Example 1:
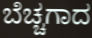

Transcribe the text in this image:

ಬೆಚ್ಚಗಾದ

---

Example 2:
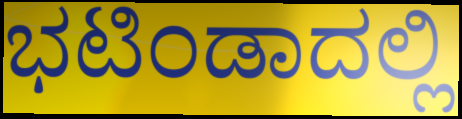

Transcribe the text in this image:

ಭಟಿಂಡಾದಲ್ಲಿ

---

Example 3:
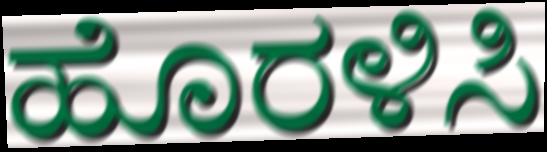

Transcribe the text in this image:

ಹೊರಳಿಸಿ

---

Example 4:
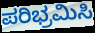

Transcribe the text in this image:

ಪರಿಭ್ರಮಿಸಿ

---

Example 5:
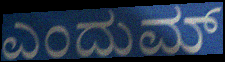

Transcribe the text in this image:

ಎಂದುಮ್